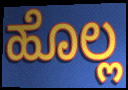
ಹೊಲ್ಲ